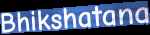
Bhikshatana